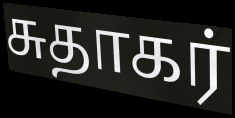
சுதாகர்